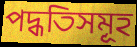
পদ্ধতিসমূহ